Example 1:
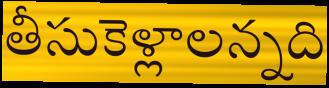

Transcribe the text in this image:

తీసుకెళ్లాలన్నది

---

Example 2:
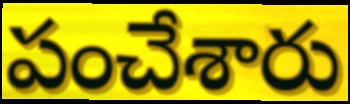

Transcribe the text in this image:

పంచేశారు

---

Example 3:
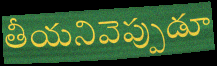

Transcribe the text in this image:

తీయనివెప్పుడూ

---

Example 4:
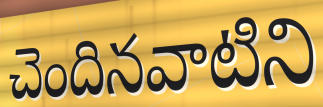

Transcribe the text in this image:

చెందినవాటిని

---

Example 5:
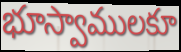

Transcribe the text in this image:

భూస్వాములకూ